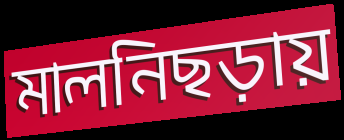
মালনিছড়ায়